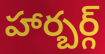
హార్బర్గ్